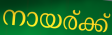
നായര്ക്ക്